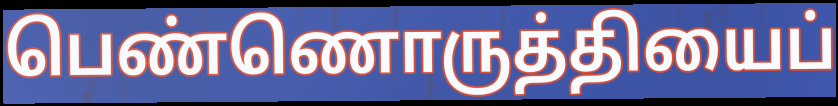
பெண்ணொருத்தியைப்